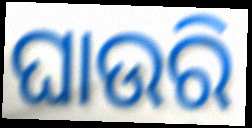
ଘାଉରି